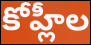
కోహ్లీల